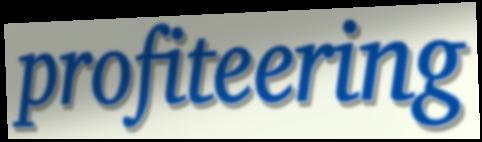
profiteering